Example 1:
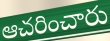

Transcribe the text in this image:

ఆచరించారు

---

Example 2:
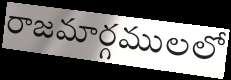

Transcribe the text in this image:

రాజమార్గములలో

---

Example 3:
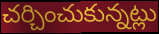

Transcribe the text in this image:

చర్చించుకున్నట్లు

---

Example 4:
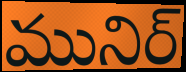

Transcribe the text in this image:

మునిర్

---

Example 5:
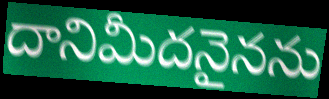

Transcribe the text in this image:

దానిమీదనైనను